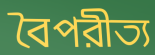
বৈপরীত্য